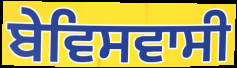
ਬੇਵਿਸਵਾਸੀ